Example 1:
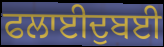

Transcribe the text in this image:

ਫਲਾਈਦੁਬਈ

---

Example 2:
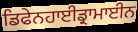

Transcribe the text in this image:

ਡਿਫੇਨਹਾਈਡ੍ਰਾਮਾਈਨ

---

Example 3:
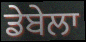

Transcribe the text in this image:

ਡੇਬੇਲਾ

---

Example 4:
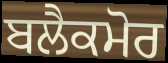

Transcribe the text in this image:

ਬਲੈਕਮੋਰ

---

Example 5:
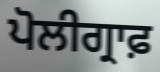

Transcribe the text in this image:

ਪੋਲੀਗ੍ਰਾਫ਼